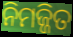
ନିମଜ୍ଜିତ